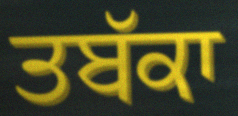
ਤਬੱਕਾ